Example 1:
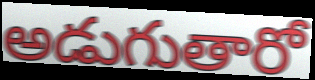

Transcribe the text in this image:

అడుగుతారో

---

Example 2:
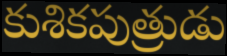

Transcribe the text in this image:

కుశికపుత్రుడు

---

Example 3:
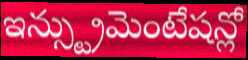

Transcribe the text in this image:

ఇన్స్ట్రుమెంటేషన్లో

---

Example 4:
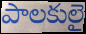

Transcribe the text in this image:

పాలకులై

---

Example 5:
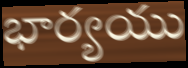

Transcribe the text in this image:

భార్యయు